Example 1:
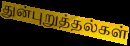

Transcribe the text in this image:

துன்புறுத்தல்கள்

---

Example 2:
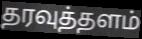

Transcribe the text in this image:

தரவுத்தளம்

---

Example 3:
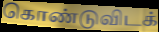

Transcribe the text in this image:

கொண்டுவிடக்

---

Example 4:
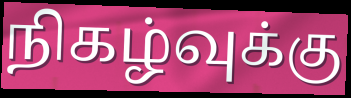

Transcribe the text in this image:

நிகழ்வுக்கு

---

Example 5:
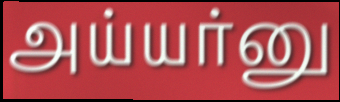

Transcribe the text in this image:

அய்யர்னு